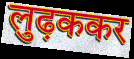
लुढ़ककर